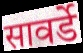
सावर्डे